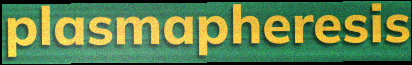
plasmapheresis